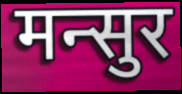
मन्सुर